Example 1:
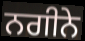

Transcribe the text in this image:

ਨਗੀਨੇ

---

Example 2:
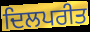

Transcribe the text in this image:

ਦਿਲਪਰੀਤ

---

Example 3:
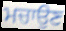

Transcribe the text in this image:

ਮਚਾਉਣ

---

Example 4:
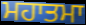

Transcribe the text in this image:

ਮਹਾਤਮਾ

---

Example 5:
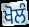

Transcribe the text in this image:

ਖੋਲੰ